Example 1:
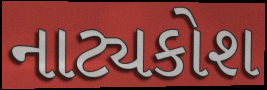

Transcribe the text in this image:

નાટ્યકોશ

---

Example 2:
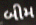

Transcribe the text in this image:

બીમ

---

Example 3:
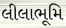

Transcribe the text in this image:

લીલાભૂમિ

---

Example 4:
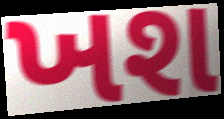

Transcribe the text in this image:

ખશ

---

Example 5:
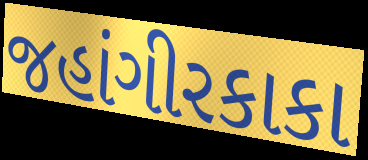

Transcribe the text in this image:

જહાંગીરકાકા